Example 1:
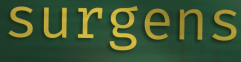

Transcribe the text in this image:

surgens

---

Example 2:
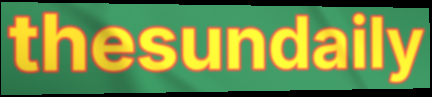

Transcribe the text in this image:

thesundaily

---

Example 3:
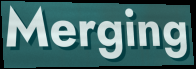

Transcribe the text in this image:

Merging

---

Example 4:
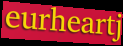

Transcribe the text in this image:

eurheartj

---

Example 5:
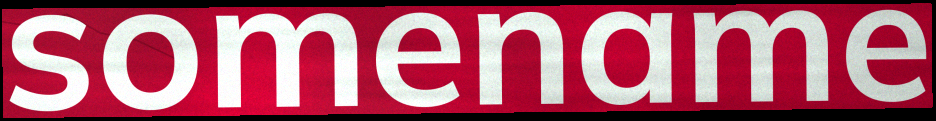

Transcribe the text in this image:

somename